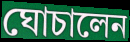
ঘোচালেন